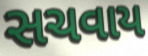
સચવાય